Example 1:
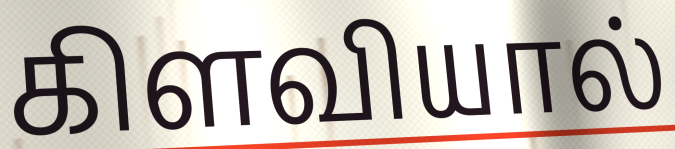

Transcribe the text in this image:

கிளவியால்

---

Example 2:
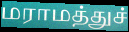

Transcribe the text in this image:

மராமத்துச்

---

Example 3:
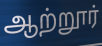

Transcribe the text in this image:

ஆற்றூர்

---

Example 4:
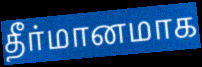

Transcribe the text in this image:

தீர்மானமாக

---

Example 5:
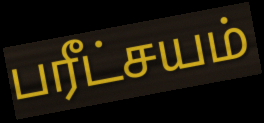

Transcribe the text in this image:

பரீட்சயம்